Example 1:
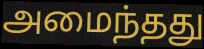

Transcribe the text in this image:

அமைந்தது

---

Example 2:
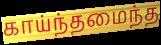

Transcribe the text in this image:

காய்ந்தமைந்த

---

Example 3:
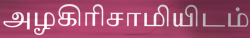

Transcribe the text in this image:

அழகிரிசாமியிடம்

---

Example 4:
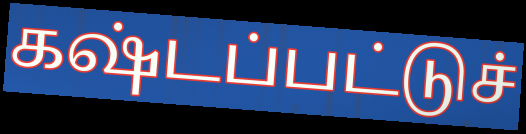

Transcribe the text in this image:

கஷ்டப்பட்டுச்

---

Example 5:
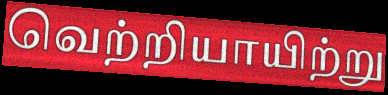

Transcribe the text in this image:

வெற்றியாயிற்று